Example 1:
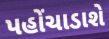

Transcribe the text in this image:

પહોંચાડાશે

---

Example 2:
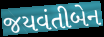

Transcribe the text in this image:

જયવંતીબેન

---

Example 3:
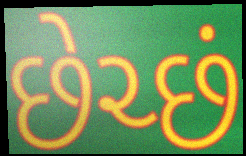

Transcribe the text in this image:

છેચ્છં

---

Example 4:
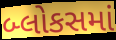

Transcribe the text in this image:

બ્લોકસમાં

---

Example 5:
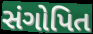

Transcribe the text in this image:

સંગોપિત